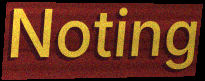
Noting